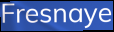
Fresnaye